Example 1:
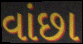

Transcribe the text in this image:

વાંછા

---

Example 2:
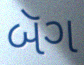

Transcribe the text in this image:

બૅગ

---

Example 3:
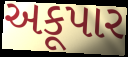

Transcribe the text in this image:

અકૂપાર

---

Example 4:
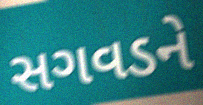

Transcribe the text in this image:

સગવડને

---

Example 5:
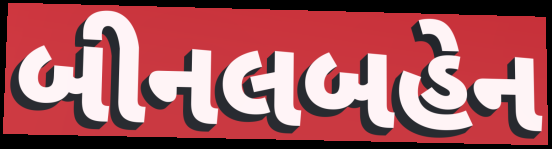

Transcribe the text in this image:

બીનલબહેન